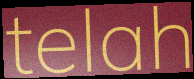
telah